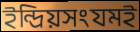
ইন্দ্রিয়সংযমই